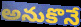
అనుకొనే